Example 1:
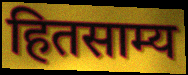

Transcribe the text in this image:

हितसाम्य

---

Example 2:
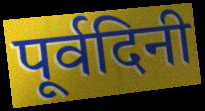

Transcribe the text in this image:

पूर्वदिनी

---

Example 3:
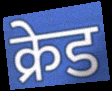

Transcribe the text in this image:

क्रेड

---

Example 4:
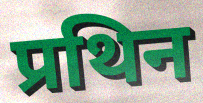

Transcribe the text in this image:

प्रथिन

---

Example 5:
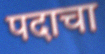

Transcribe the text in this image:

पदाचा